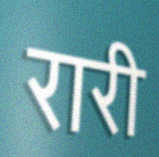
रारी